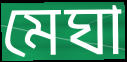
মেঘা